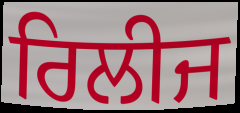
ਰਿਲੀਜ